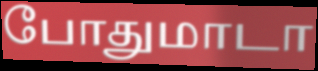
போதுமாடா